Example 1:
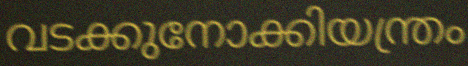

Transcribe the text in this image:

വടക്കുനോക്കിയന്ത്രം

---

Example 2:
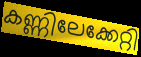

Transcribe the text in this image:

കണ്ണിലേക്കേറ്റി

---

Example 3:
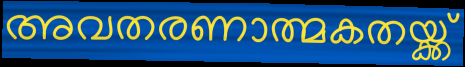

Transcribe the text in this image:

അവതരണാത്മകതയ്ക്ക്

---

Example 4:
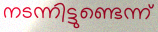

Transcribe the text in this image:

നടന്നിട്ടുണ്ടെന്ന്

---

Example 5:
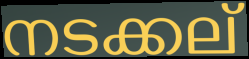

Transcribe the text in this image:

നടക്കല്